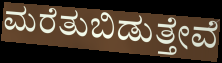
ಮರೆತುಬಿಡುತ್ತೇವೆ